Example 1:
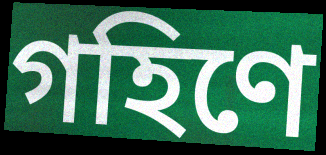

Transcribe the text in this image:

গহিণে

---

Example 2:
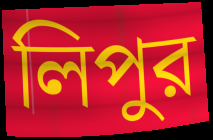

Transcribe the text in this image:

লিপুর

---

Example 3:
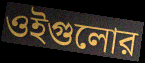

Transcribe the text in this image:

ওইগুলোর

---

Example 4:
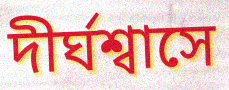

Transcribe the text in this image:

দীর্ঘশ্বাসে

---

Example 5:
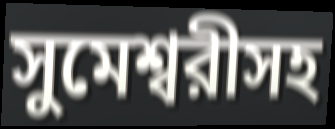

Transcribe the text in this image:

সুমেশ্বরীসহ